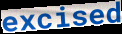
excised